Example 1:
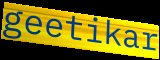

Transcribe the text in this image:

geetikar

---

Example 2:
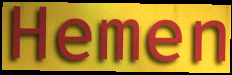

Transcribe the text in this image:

Hemen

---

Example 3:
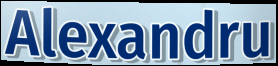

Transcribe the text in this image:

Alexandru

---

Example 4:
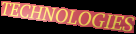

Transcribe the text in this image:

TECHNOLOGIES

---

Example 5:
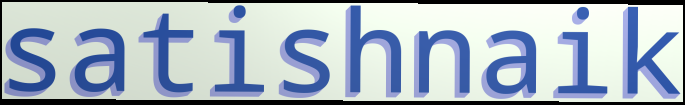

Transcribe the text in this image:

satishnaik